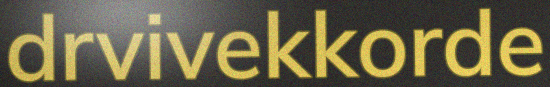
drvivekkorde